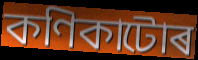
কণিকাটোৰ